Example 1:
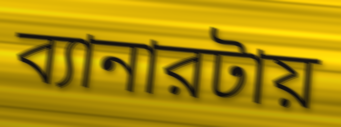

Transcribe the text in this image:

ব্যানারটায়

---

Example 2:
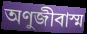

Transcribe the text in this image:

অণুজীবাস্ম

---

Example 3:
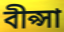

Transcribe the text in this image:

বীপ্সা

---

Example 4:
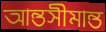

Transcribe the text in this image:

আন্তসীমান্ত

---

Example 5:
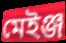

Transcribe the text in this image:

মেইঞ্জ